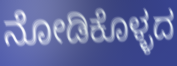
ನೋಡಿಕೊಳ್ಳದ